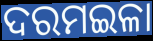
ଦରମଇଳା